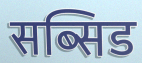
सब्सिड